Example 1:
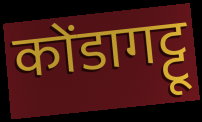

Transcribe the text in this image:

कोंडागट्टू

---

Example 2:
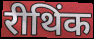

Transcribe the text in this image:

रीथिंक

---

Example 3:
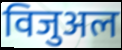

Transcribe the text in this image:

विजुअल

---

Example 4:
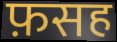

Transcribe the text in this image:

फ़सह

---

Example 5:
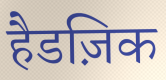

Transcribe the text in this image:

हैडज़िक